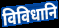
विविधानि